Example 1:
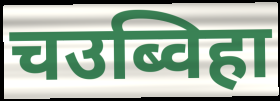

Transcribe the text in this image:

चउब्विहा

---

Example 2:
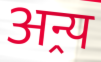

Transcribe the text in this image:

अ्रन्य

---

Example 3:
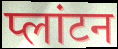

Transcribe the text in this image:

प्लांटन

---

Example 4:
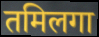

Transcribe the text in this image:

तमिलगा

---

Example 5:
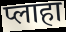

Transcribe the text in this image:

प्लाहा